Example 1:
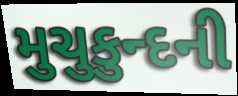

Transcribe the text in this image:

મુચુકુન્દની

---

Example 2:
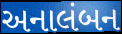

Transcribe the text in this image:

અનાલંબન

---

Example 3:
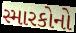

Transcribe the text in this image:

સ્મારકોનો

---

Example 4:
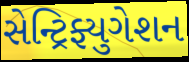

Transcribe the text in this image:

સેન્ટ્રિફ્યુગેશન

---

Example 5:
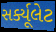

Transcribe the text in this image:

સર્ક્યૂલેટ